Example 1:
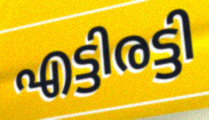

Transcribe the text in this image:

എട്ടിരട്ടി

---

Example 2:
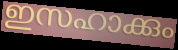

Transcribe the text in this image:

ഇസഹാക്കും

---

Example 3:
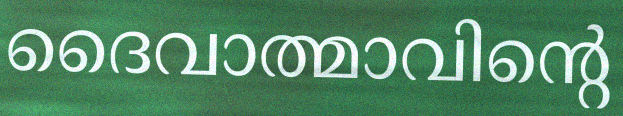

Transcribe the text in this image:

ദൈവാത്മാവിന്റെ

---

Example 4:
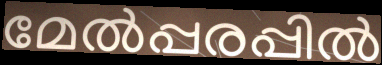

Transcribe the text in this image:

മേൽപ്പരപ്പിൽ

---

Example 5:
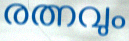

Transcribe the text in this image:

രത്നവും